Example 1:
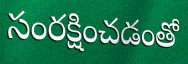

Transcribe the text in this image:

సంరక్షించడంతో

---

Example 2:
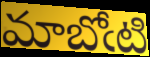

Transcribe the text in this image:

మాబోఁటి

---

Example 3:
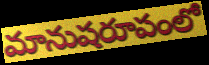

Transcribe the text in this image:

మానుషరూపంలో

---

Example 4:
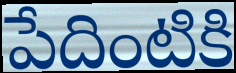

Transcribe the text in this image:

పేదింటికి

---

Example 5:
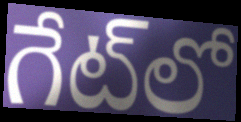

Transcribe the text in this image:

గేట్‌లో